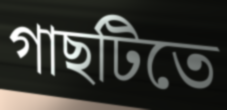
গাছটিতে